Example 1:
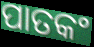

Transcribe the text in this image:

ପାତକଂ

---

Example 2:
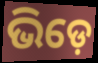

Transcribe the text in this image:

ଭିଡ଼େ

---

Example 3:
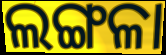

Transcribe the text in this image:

ଲଙ୍ଗଳା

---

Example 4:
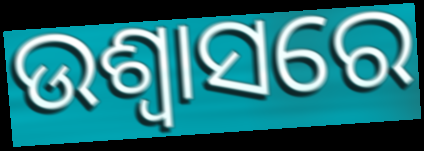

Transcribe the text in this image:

ଉଶ୍ଵାସରେ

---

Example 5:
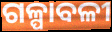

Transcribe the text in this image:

ଗଳ୍ପାବଳୀ